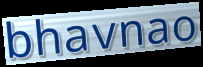
bhavnao